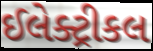
ઈલેક્ટ્રીકલ